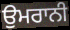
ਉਮਰਾਨੀ